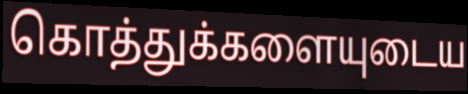
கொத்துக்களையுடைய